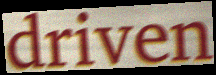
driven